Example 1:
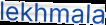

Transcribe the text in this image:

lekhmala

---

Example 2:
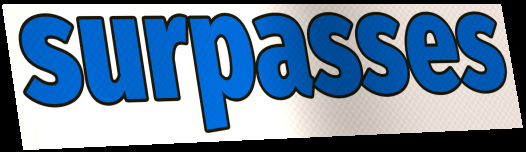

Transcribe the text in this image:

surpasses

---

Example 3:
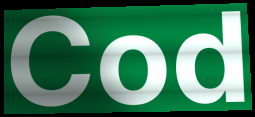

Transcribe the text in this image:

Cod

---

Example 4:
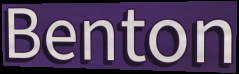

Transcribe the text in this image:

Benton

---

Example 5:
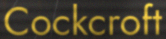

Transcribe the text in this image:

Cockcroft